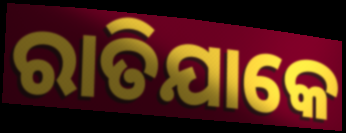
ରାତିଯାକେ